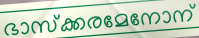
ഭാസ്ക്കരമേനോന്